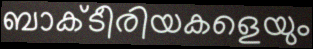
ബാക്ടീരിയകളെയും